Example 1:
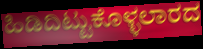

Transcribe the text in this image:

ಹಿಡಿದಿಟ್ಟುಕೊಳ್ಳಲಾರದ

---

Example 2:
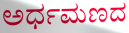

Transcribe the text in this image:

ಅರ್ಧಮಣದ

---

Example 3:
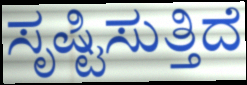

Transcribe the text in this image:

ಸೃಷ್ಟಿಸುತ್ತಿದೆ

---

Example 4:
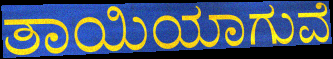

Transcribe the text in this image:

ತಾಯಿಯಾಗುವೆ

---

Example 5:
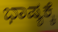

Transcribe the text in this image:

ಭಾಷ್ಯಕ್ಕೆ